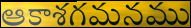
ఆకాశగమనము